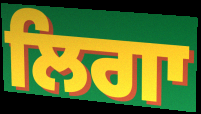
ਲਿਗਾ